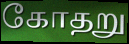
கோதறு